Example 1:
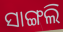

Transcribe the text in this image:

ସାଙ୍ଗଲି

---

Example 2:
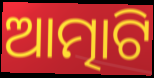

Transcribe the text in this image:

ଆତ୍ମାଟି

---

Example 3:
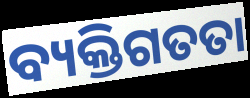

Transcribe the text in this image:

ବ୍ୟକ୍ତିଗତତା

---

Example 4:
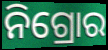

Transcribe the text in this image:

ନିଗ୍ରୋର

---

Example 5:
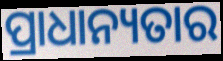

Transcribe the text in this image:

ପ୍ରାଧାନ୍ୟତାର